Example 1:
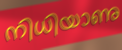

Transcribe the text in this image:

നിധിയാണു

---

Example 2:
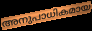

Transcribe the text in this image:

അനുപാധികമായ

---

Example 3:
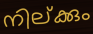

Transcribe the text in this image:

നില്ക്കും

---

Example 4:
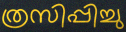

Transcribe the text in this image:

ത്രസിപ്പിച്ചു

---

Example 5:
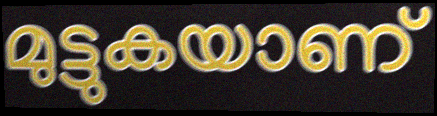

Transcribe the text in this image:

മുട്ടുകയാണ്